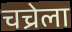
चच्रेला